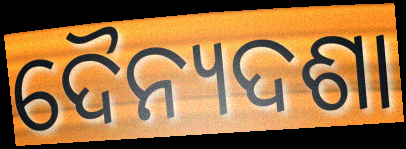
ଦୈନ୍ୟଦଶା